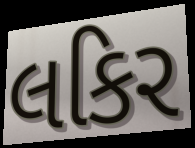
લકિર